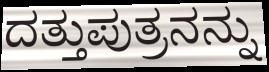
ದತ್ತುಪುತ್ರನನ್ನು